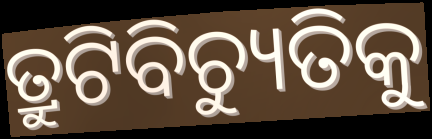
ତ୍ରୁଟିବିଚ୍ୟୁତିକୁ